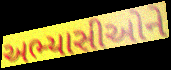
અભ્યાસીઓને